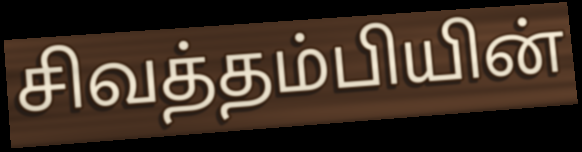
சிவத்தம்பியின்